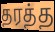
தரத்த